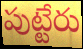
పుట్టేరు